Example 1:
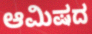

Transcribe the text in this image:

ಆಮಿಷದ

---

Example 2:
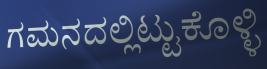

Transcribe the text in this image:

ಗಮನದಲ್ಲಿಟ್ಟುಕೊಳ್ಳಿ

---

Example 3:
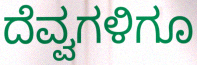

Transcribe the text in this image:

ದೆವ್ವಗಳಿಗೂ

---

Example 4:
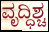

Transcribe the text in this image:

ವೃದ್ಧಿಶ್ಚ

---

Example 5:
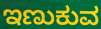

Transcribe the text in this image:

ಇಣುಕುವ